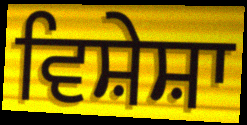
ਵਿਸ਼ੇਸ਼ਾ